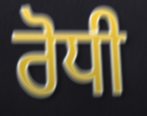
ਰੋਧੀ